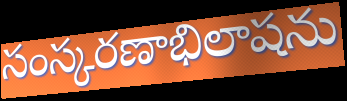
సంస్కరణాభిలాషను